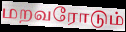
மறவரோடும்